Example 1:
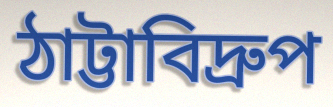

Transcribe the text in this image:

ঠাট্টাবিদ্রুপ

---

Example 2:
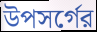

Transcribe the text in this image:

উপসর্গের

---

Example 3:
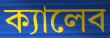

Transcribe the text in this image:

ক্যালেব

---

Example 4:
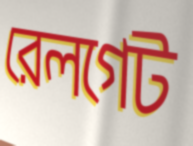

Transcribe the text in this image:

রেলগেট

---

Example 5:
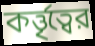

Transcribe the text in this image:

কর্ত্তৃত্বের